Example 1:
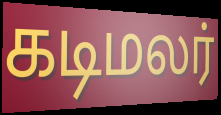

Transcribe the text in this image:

கடிமலர்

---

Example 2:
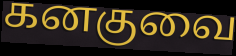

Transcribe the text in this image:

கனகுவை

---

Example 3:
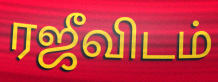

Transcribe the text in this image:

ரஜீவிடம்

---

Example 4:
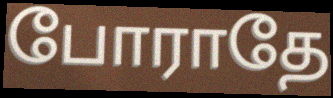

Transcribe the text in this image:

போராதே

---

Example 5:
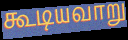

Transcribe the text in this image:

கூடியவாறு